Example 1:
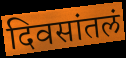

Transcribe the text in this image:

दिवसांतलं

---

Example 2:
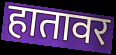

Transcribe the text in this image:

हातावर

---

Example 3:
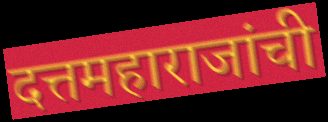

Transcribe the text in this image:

दत्तमहाराजांची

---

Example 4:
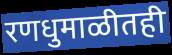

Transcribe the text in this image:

रणधुमाळीतही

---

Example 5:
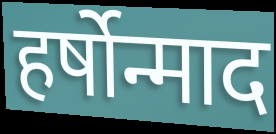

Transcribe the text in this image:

हर्षोन्माद